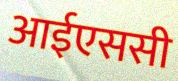
आईएससी